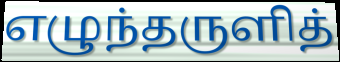
எழுந்தருளித்